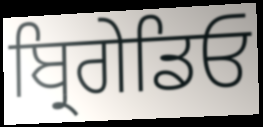
ਬ੍ਰਿਗੇਡਿਓ